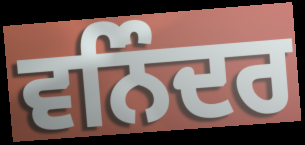
ਵਨਿੰਦਰ